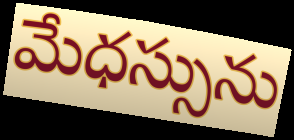
మేధస్సును